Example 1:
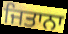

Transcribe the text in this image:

ਜਿਤਾਨਾ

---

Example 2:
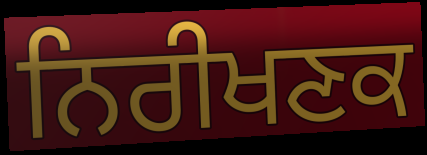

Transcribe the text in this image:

ਨਿਰੀਖਣਕ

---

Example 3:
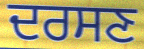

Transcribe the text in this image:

ਦਰਸਣ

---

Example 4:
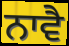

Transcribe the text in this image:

ਨਾਵੈ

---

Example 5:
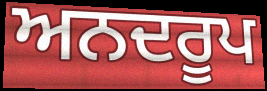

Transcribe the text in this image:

ਅਨਦਰੂਪ